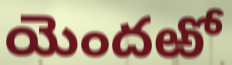
యెందఱో